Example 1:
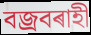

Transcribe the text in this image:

বজ্ৰবৰাহী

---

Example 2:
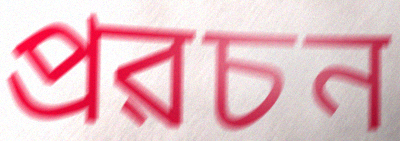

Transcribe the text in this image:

প্ৰৱচন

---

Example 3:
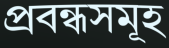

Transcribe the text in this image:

প্ৰবন্ধসমূহ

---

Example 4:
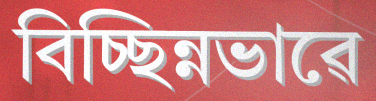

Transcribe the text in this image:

বিচ্ছিন্নভাৱে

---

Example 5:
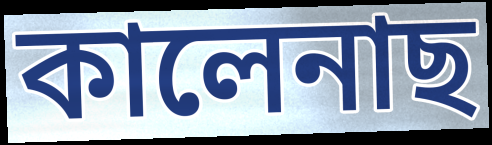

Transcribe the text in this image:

কালেনাছ